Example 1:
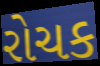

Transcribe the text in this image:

રોચક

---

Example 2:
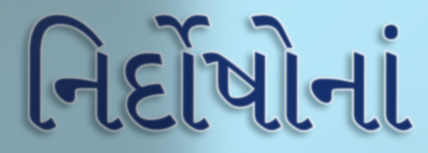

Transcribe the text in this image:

નિર્દોષોનાં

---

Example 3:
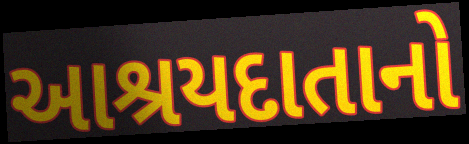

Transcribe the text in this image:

આશ્રયદાતાનો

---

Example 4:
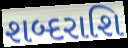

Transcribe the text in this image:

શબ્દરાશિ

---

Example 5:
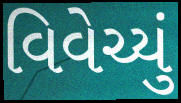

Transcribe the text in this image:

વિવેચ્યું